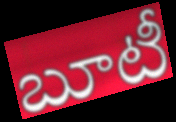
బూటీ